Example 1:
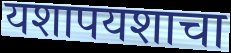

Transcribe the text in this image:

यशापयशाचा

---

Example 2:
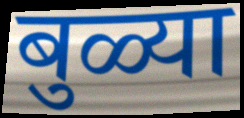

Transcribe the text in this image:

बुळ्या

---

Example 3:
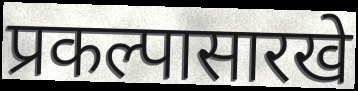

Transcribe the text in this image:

प्रकल्पासारखे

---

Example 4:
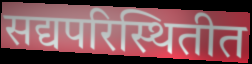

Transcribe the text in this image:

सद्यपरिस्थितीत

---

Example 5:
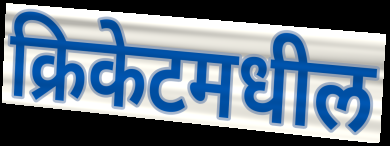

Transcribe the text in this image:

क्रिकेटमधील